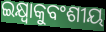
ଇକ୍ଷ୍ୱାକୁବଂଶୀୟ